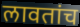
लावतांच